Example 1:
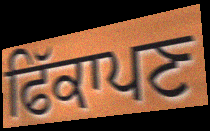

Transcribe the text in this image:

ਫਿੱਕਾਪਣ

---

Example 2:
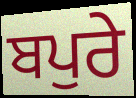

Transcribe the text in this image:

ਬਪੁਰੇ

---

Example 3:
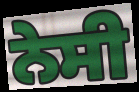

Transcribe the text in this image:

ਨੇਸੀ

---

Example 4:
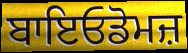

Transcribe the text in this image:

ਬਾਇਓਡੋਮਜ਼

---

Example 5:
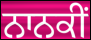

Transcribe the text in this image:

ਨਾਨਕੀਂ